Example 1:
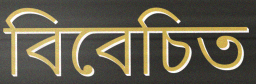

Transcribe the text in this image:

বিবেচিত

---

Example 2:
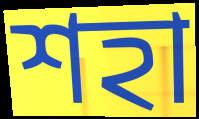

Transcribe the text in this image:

শহা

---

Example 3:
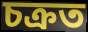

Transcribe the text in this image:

চক্ৰত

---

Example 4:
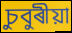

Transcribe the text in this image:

চুবুৰীয়া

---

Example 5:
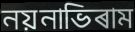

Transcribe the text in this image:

নয়নাভিৰাম